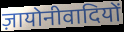
ज़ायोनीवादियों